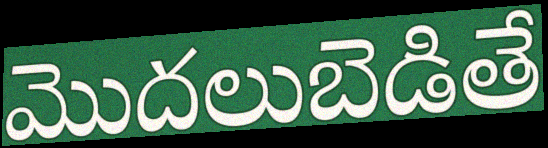
మొదలుబెడితే